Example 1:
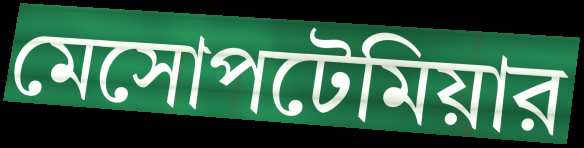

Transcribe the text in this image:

মেসোপটেমিয়ার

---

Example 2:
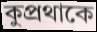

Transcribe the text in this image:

কুপ্রথাকে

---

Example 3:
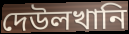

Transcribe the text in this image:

দেউলখানি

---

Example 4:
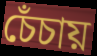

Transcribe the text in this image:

চেঁচায়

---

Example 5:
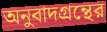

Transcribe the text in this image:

অনুবাদগ্রন্থের